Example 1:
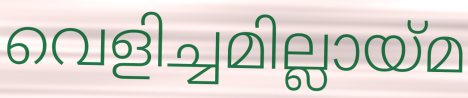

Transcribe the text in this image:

വെളിച്ചമില്ലായ്മ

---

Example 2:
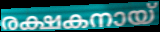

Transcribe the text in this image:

രക്ഷകനായ്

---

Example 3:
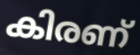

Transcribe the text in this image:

കിരണ്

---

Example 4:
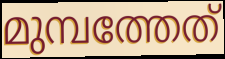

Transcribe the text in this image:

മുമ്പത്തേത്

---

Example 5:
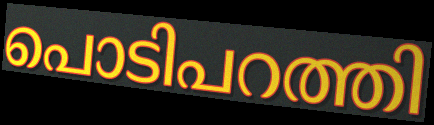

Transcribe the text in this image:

പൊടിപറത്തി